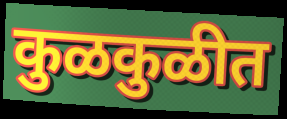
कुळकुळीत